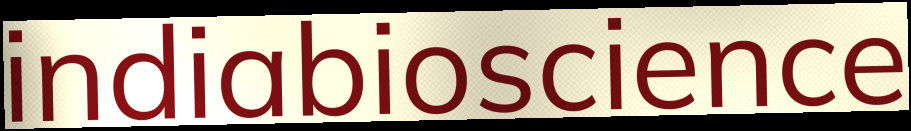
indiabioscience